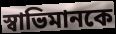
স্বাভিমানকে